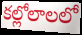
కల్లోలాలలో